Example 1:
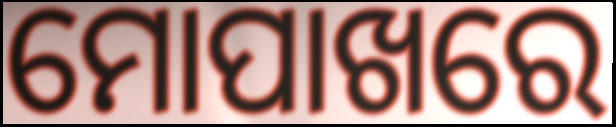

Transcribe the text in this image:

ମୋପାଖରେ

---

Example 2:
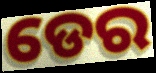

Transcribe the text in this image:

ଡେର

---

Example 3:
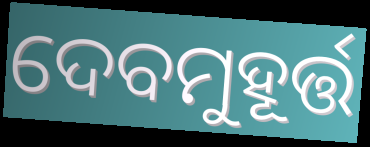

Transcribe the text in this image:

ଦେବମୁହୂର୍ତ୍ତ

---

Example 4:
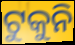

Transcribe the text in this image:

ଟୁକୁନି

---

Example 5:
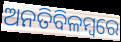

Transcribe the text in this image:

ଅନତିବିଳମ୍ବରେ